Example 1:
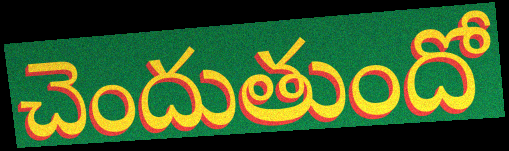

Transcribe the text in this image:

చెందుతుందో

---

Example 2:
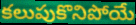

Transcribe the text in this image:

కలుపుకొనిపోయే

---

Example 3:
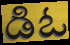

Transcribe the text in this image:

డిఓ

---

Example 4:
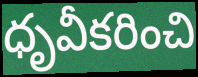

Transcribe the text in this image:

ధృవీకరించి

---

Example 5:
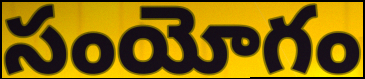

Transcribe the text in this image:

సంయోగం